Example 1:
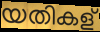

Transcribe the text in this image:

യതികള്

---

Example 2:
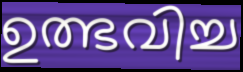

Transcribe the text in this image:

ഉത്ഭവിച്ച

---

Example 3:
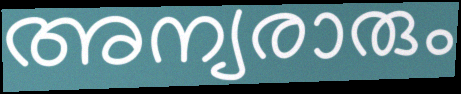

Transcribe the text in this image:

അന്യരാരും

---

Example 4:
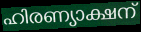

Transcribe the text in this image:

ഹിരണ്യാക്ഷന്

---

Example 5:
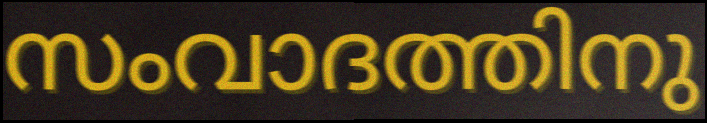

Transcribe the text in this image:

സംവാദത്തിനു